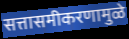
सत्तासमीकरणामुळे